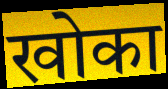
खोका